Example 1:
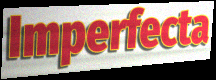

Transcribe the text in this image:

Imperfecta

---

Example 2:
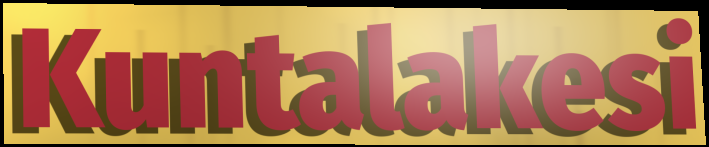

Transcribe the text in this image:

Kuntalakesi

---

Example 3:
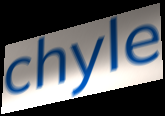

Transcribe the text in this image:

chyle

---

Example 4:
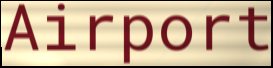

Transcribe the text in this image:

Airport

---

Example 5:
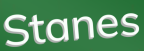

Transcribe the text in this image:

Stanes